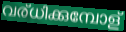
വര്ധിക്കുമ്പോള്